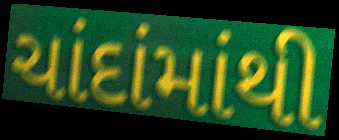
ચાંદાંમાંથી